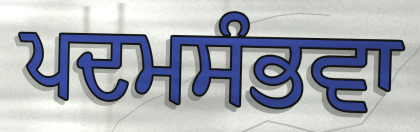
ਪਦਮਸੰਭਵਾ